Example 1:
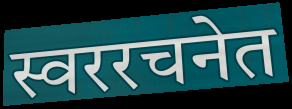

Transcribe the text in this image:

स्वररचनेत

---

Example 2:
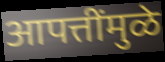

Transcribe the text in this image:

आपत्तींमुळे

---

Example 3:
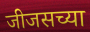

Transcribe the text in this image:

जीजसच्या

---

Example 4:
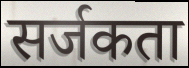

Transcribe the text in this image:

सर्जकता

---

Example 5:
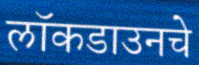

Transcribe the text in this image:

लॉकडाउनचे